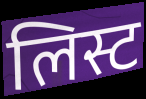
लिस्‍ट